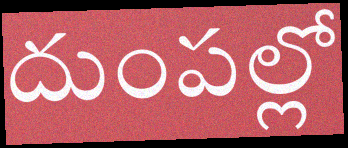
దుంపల్లో